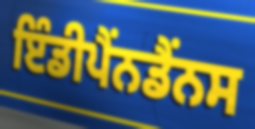
ਇੰਡੀਪੈਂਨਡੈਂਨਸ